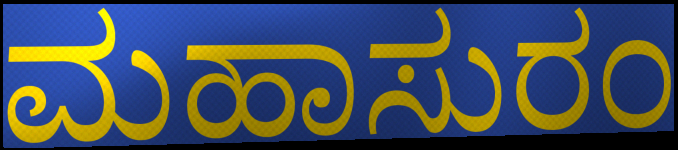
ಮಹಾಸುರಂ